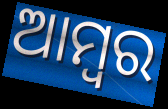
ଆମ୍ବର